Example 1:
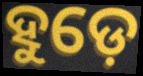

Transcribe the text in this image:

ହୁଡ଼େ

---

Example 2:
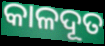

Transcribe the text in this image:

କାଳଦୂତ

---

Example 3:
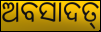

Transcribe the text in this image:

ଅବସାଦତ୍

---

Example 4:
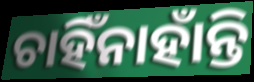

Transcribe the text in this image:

ଚାହିଁନାହାଁନ୍ତି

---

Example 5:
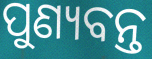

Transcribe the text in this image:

ପୁଣ୍ୟବନ୍ତ